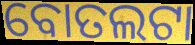
ବୋତଲଟା